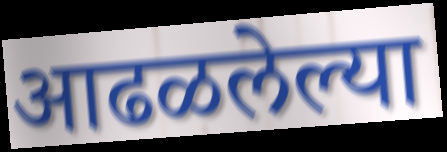
आढळलेल्या